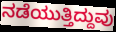
ನಡೆಯುತ್ತಿದ್ದುವು